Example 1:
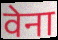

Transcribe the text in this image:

वेना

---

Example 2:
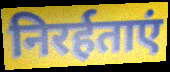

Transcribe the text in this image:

निरर्हताएं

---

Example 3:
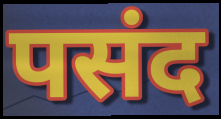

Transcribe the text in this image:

पसंद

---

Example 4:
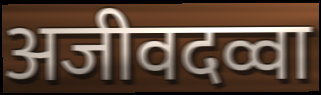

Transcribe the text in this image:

अजीवदव्वा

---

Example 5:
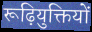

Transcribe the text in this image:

रूढ़ियुक्तियों